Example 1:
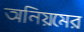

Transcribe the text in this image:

অনিয়মের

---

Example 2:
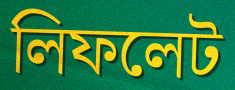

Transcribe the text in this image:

লিফলেট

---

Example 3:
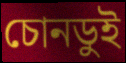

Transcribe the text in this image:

চোনডুই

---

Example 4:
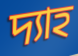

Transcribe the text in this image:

দ্যাহ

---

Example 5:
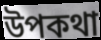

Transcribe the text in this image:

উপকথা